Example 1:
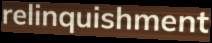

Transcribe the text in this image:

relinquishment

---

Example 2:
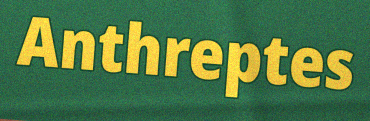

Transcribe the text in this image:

Anthreptes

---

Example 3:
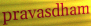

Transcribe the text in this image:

pravasdham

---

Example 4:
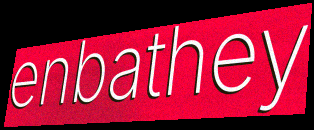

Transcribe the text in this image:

enbathey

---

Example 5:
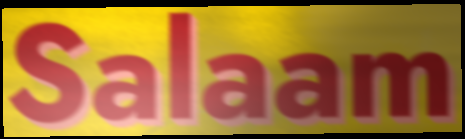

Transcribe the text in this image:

Salaam